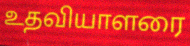
உதவியாளரை